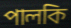
পালকি